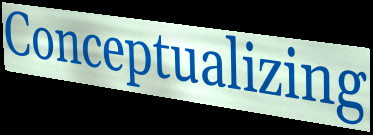
Conceptualizing